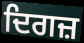
ਦਿਗਜ਼